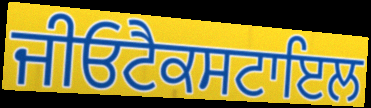
ਜੀਓਟੈਕਸਟਾਇਲ